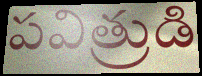
పవిత్రుడి